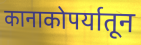
कानाकोपर्यातून